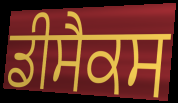
ਡੀਸੈਕਸ